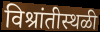
विश्रांतीस्थळी